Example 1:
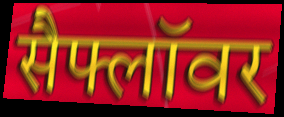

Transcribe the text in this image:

सैफ्लॉवर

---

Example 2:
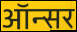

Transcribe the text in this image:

ऑन्सर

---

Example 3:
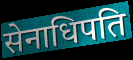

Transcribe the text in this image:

सेनाधिपति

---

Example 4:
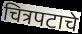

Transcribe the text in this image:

चित्रपटाचे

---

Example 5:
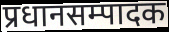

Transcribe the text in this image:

प्रधानसम्पादक